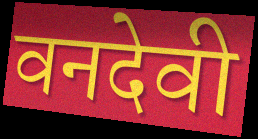
वनदेवी